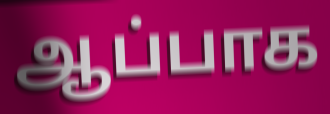
ஆப்பாக